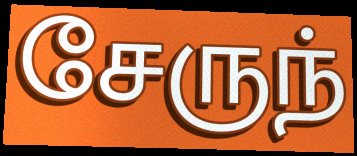
சேருந்